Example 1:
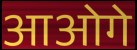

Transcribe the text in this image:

आओगे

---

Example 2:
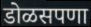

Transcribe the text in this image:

डोळसपणा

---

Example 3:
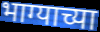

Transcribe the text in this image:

भाग्याच्या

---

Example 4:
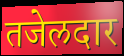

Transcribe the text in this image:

तजेलदार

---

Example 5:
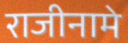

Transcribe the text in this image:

राजीनामे